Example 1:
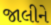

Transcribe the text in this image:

જાલીને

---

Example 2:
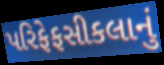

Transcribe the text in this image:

પરિફેફસીકલાનું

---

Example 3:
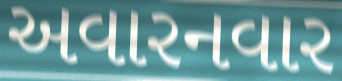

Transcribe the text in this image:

અવારનવાર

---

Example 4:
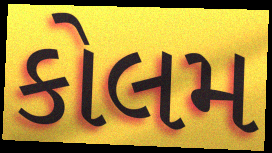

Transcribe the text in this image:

કોલમ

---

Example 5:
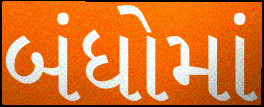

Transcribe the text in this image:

બંધોમાં